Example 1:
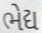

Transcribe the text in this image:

ભેદ્ય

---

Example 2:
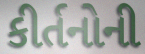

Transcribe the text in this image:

કીર્તનોની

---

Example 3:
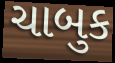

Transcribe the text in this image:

ચાબુક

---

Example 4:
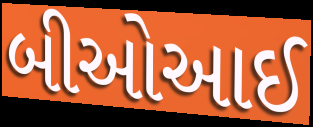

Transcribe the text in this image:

બીઓઆઈ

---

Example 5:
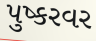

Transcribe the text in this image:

પુષ્કરવર